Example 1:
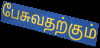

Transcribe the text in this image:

பேசுவதற்கும்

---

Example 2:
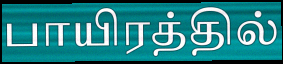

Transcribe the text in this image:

பாயிரத்தில்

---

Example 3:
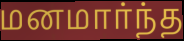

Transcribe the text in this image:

மனமார்ந்த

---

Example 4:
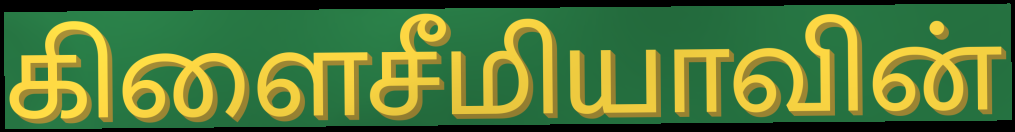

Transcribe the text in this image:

கிளைசீமியாவின்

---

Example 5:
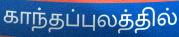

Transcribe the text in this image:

காந்தப்புலத்தில்